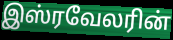
இஸ்ரவேலரின்